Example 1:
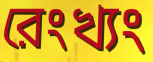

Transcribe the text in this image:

রেংখ্যং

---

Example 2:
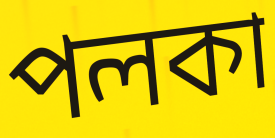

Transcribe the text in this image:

পলকা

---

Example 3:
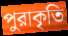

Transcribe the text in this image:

পুরাকৃতি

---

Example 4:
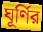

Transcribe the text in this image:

ঘূর্ণির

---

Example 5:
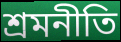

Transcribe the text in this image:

শ্রমনীতি